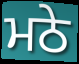
ਮਠੇ